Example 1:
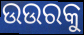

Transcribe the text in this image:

ଉଉରକୁ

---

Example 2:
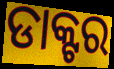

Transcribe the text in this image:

ଡାକ୍ଟର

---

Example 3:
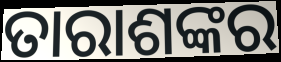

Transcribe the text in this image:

ତାରାଶଙ୍କର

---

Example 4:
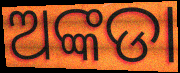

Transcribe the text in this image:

ଅଙ୍କଡା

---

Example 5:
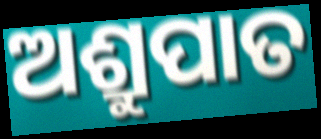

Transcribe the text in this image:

ଅଶ୍ରୁପାତ